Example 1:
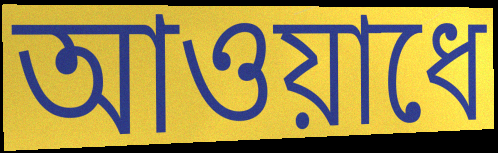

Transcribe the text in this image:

আওয়াধে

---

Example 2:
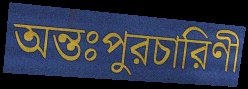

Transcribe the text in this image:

অন্তঃপুরচারিণী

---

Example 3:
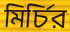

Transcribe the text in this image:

মির্চির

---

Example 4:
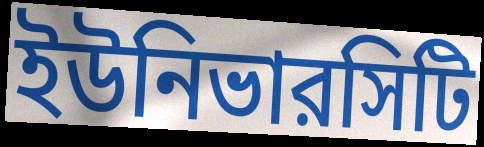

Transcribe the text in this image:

ইউনিভারসিটি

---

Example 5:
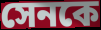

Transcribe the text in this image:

সেনকে